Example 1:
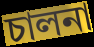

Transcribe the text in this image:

চালনা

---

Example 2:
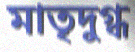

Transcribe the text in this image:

মাতৃদুগ্ধ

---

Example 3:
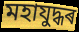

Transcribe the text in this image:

মহাযুদ্ধৰ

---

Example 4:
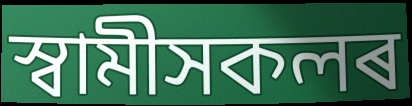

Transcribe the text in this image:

স্বামীসকলৰ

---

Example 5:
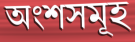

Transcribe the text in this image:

অংশসমূহ